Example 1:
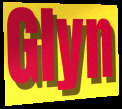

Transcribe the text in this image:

Glyn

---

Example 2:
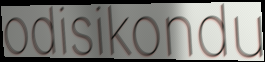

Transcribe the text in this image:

odisikondu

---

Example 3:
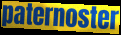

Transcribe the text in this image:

paternoster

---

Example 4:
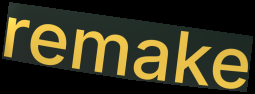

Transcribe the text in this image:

remake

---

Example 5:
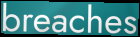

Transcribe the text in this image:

breaches